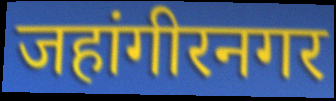
जहांगीरनगर